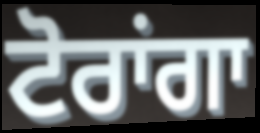
ਟੋਰਾਂਗਾ